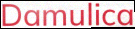
Damulica